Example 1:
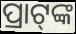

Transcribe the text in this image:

ପ୍ରାଟ୍‍ଙ୍କ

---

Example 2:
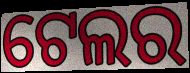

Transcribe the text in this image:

ଟେଲର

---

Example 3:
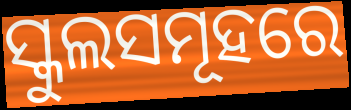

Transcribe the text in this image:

ସ୍କୁଲସମୂହରେ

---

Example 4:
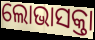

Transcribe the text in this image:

ଲୋଭାସକ୍ତା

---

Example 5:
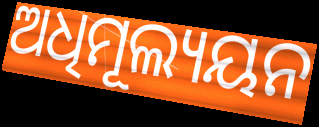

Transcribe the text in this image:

ଅଧିମୂଲ୍ୟୟନ